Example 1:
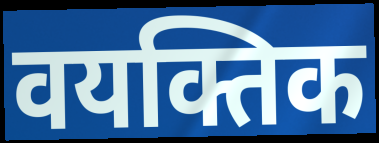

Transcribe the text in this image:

वयक्तिक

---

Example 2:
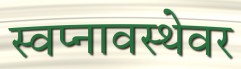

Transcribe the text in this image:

स्वप्नावस्थेवर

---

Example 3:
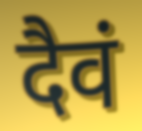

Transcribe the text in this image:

दैवं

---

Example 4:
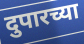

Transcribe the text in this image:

दुपारच्या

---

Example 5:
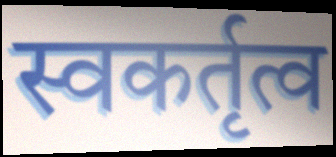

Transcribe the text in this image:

स्वकर्तृत्व